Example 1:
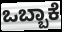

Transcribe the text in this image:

ಒಬ್ಬಾಕೆ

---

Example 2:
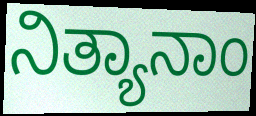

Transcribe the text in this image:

ನಿತ್ಯಾನಾಂ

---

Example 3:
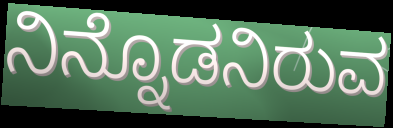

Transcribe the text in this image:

ನಿನ್ನೊಡನಿರುವ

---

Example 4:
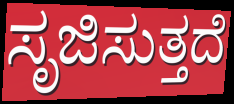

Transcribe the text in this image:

ಸೃಜಿಸುತ್ತದೆ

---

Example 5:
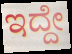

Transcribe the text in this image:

ಇದ್ದೇ